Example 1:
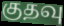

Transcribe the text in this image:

குதவு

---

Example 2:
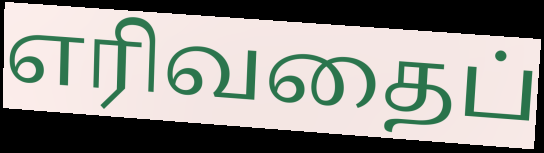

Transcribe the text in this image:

எரிவதைப்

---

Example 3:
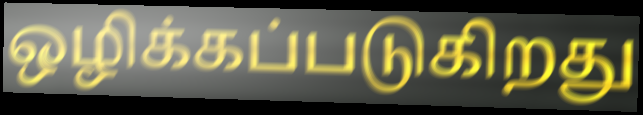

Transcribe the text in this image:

ஒழிக்கப்படுகிறது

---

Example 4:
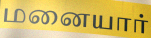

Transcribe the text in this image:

மனையார்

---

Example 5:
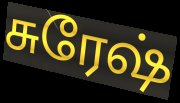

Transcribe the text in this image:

சுரேஷ்